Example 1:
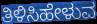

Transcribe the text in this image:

ತಿಳಿಸಿಹೇಳುವ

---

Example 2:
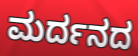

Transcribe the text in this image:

ಮರ್ದನದ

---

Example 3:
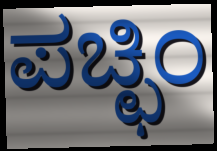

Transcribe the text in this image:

ಪಚ್ಛಿಂ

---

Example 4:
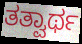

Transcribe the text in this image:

ತತ್ವಾರ್ಥ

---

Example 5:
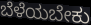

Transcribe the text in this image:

ಬೆಳೆಯಬೇಕು